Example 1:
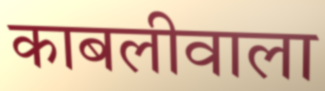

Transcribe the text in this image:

काबलीवाला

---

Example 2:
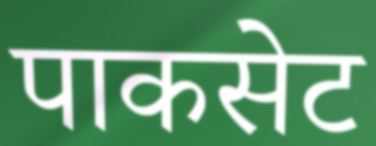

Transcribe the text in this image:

पाकसेट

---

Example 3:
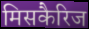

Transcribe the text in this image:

मिसकैरिज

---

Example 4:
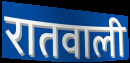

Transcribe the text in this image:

रातवाली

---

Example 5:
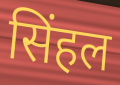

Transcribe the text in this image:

सिंहल